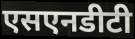
एसएनडीटी